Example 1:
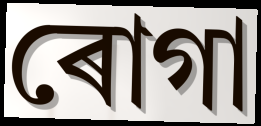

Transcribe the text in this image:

ৰোগা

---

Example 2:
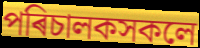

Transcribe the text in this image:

পৰিচালকসকলে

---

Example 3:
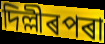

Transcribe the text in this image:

দিল্লীৰপৰা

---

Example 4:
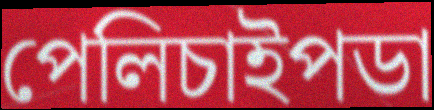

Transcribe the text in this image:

পেলিচাইপডা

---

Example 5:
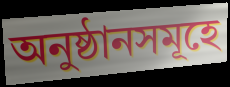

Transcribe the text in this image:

অনুষ্ঠানসমূহে